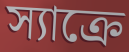
স্যাক্রে